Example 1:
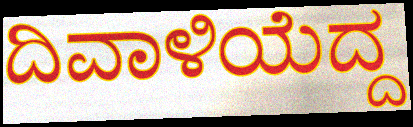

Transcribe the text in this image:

ದಿವಾಳಿಯೆದ್ದ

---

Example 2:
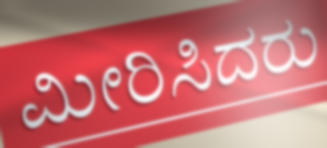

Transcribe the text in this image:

ಮೀರಿಸಿದರು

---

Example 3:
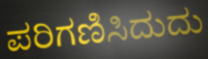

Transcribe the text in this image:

ಪರಿಗಣಿಸಿದುದು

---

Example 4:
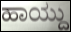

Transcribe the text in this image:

ಹಾಯ್ದು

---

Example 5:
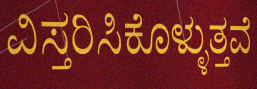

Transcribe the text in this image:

ವಿಸ್ತರಿಸಿಕೊಳ್ಳುತ್ತವೆ